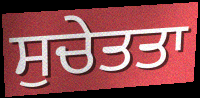
ਸੁਚੇਤਤਾ